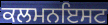
ਕਲਮਨਇਸਟ